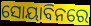
ସୋୟାବିନରେ